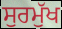
ਸੁਰਮੁੱਖ